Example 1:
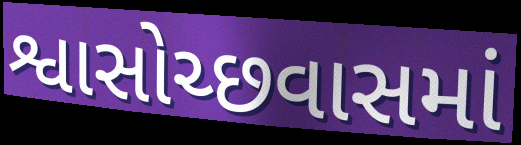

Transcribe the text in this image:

શ્વાસોચ્છવાસમાં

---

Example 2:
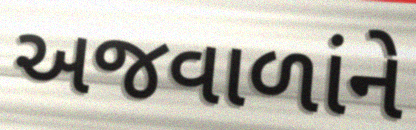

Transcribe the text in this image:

અજવાળાંને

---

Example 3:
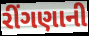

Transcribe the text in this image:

રીંગણાની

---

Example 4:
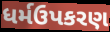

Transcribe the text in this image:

ધર્મઉપકરણ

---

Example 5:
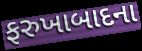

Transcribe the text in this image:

ફરુખાબાદના